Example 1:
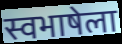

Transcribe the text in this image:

स्वभाषेला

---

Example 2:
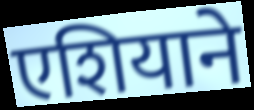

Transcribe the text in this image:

एशियाने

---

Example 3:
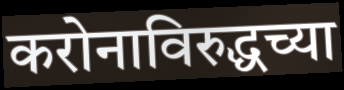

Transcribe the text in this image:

करोनाविरुद्धच्या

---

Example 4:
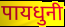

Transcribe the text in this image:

पायधुनी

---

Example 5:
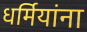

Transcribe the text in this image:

धर्मियांना